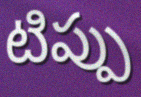
టిప్పు